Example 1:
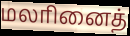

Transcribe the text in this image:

மலரினைத்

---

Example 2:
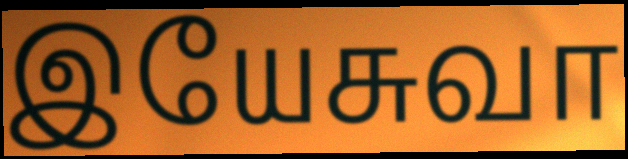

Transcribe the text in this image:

இயேசுவா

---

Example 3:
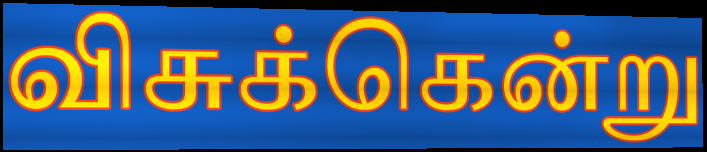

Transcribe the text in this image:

விசுக்கென்று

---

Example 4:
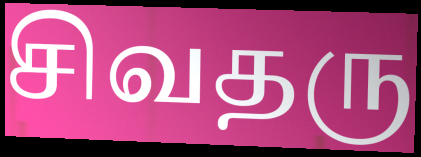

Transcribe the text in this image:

சிவதரு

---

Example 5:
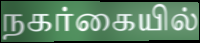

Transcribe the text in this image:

நகர்கையில்